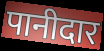
पानीदार